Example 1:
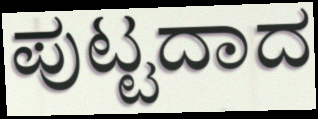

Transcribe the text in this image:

ಪುಟ್ಟದಾದ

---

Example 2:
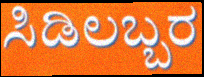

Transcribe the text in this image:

ಸಿಡಿಲಬ್ಬರ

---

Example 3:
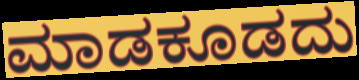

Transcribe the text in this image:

ಮಾಡಕೂಡದು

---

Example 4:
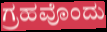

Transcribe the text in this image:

ಗ್ರಹವೊಂದು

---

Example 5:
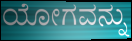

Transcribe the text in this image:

ಯೋಗವನ್ನು